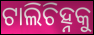
ଟାଲିଚିହ୍ନକୁ